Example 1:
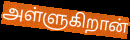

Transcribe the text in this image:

அள்ளுகிறான்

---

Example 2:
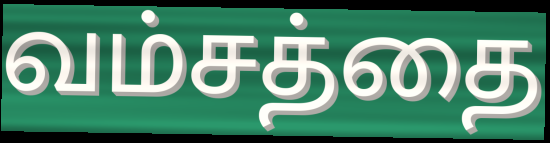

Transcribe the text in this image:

வம்சத்தை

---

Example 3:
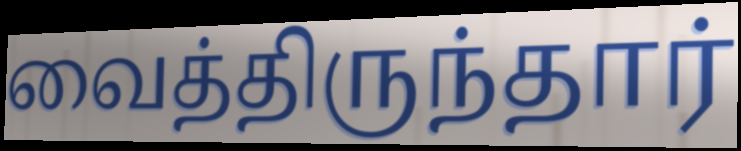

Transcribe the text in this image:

வைத்திருந்தார்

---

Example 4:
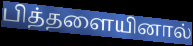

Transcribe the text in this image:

பித்தளையினால்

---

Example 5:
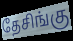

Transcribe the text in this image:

தேசிங்கு